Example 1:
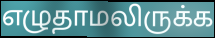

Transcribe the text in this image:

எழுதாமலிருக்க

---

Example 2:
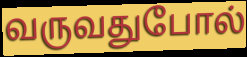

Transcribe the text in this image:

வருவதுபோல்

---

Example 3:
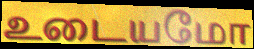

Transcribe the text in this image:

உடையமோ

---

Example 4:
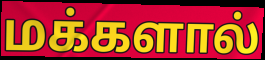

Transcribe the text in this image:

மக்களால்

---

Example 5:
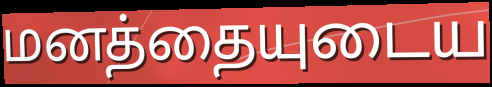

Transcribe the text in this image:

மனத்தையுடைய